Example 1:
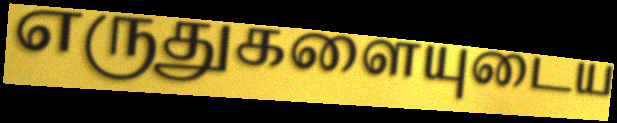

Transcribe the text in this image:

எருதுகளையுடைய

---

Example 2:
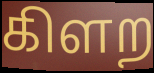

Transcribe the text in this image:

கிளற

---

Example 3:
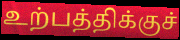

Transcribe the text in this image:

உற்பத்திக்குச்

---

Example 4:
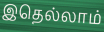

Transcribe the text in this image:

இதெல்லாம்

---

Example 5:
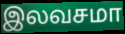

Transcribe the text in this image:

இலவசமா